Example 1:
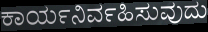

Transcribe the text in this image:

ಕಾರ್ಯನಿರ್ವಹಿಸುವುದು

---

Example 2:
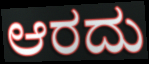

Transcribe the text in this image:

ಆರದು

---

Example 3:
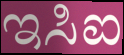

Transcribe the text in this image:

ಇಸಿಐ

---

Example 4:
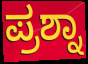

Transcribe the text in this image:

ಪ್ರಶ್ನಾ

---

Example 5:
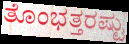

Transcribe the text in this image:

ತೊಂಭತ್ತರಷ್ಟು